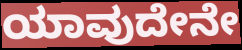
ಯಾವುದೇನೇ